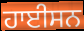
ਹਾਈਸਨ